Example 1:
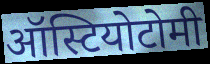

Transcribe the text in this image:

ऑस्टियोटोमी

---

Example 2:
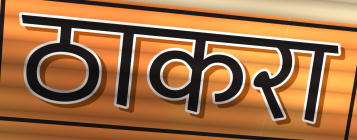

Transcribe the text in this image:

ठाकरा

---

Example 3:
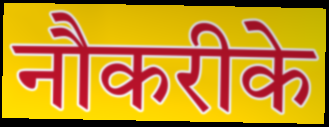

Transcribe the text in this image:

नौकरीके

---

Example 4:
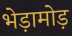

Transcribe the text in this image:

भेड़ामोड़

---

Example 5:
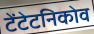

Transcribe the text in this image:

टेंटेटनिकोव